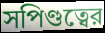
সপিণ্ডত্বের